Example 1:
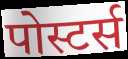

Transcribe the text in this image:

पोस्टर्स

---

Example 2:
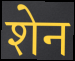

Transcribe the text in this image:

शेन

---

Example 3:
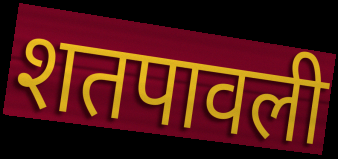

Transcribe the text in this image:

शतपावली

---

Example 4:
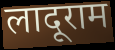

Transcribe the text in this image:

लादूराम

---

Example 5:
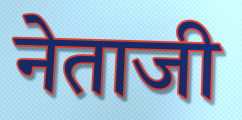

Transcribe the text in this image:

नेताजी